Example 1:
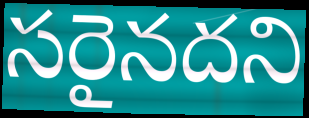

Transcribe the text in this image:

సరైనదని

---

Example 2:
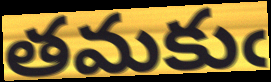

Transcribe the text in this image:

తమకుఁ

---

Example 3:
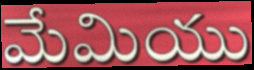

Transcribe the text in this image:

మేమియు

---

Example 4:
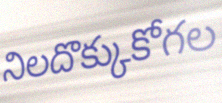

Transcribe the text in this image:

నిలదొక్కుకోగల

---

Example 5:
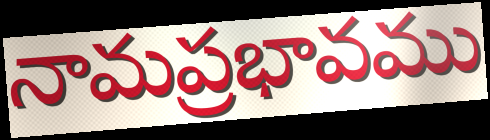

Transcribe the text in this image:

నామప్రభావము